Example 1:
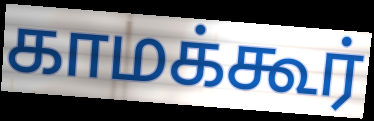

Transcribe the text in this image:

காமக்கூர்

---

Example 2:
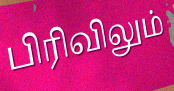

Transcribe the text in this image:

பிரிவிலும்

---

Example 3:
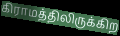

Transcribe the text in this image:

கிராமத்திலிருக்கிற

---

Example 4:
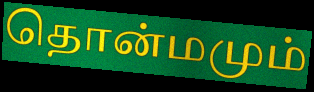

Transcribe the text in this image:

தொன்மமும்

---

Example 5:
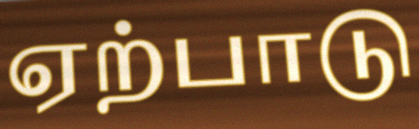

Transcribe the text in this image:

ஏற்பாடு